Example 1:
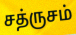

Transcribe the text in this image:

சத்ருசம்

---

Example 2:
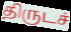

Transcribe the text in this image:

திருடச்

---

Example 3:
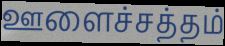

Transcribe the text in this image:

ஊளைச்சத்தம்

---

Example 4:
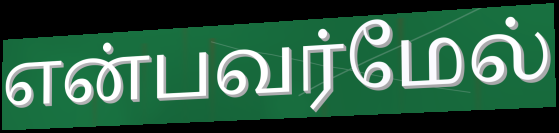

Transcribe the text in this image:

என்பவர்மேல்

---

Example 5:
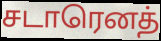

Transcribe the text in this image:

சடாரெனத்